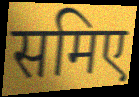
समिए